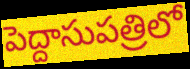
పెద్దాసుపత్రిలో